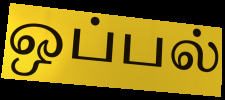
ஒப்பல்